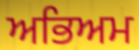
ਅਭਿਅਮ